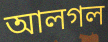
আলগল